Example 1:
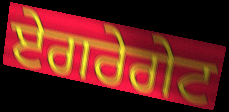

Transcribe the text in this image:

ਏਗਰੇਗੇਟ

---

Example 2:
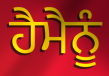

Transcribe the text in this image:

ਹੈਮੈਨੂੰ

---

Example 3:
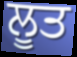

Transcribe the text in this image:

ਲੂਤ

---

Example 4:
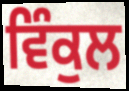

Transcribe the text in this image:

ਵਿੰਕੁਲ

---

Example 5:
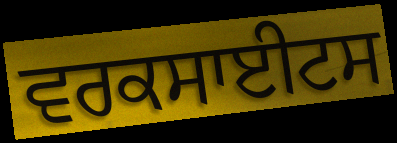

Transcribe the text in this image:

ਵਰਕਸਾਈਟਸ